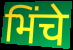
भिंचे